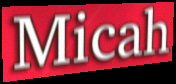
Micah